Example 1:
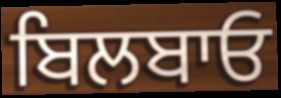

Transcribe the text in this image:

ਬਿਲਬਾਓ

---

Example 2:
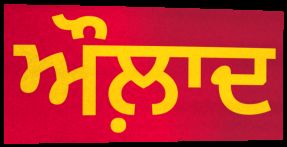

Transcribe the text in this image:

ਔਲ਼ਾਦ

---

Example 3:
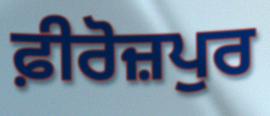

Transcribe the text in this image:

ਫ਼ੀਰੋਜ਼ਪੁਰ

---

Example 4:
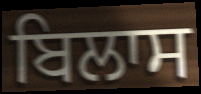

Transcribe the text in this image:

ਬਿਲਾਸ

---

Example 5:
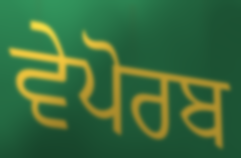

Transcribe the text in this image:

ਵੇਪੋਰਬ